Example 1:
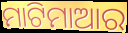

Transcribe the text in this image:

ମାଟିମାଆର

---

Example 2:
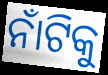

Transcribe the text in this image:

ନାଁଟିକୁ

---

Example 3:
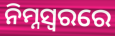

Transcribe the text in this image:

ନିମ୍ନସ୍ୱରରେ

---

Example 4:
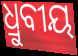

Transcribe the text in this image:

ଧ୍ରୁବୀୟ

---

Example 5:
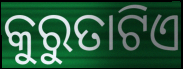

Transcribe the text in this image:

କୁରୁତାଟିଏ